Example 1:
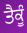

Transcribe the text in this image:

ਤੈਕੂੰ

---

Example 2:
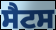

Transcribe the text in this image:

ਸੈਟਸ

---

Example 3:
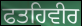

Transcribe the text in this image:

ਫਤਹਿਵੀਰ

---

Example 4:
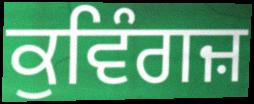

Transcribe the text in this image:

ਕੁਵਿੰਗਜ਼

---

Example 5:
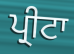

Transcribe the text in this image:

ਪ੍ਰੀਟਾ